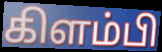
கிளம்பி